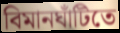
বিমানঘাঁটিতে